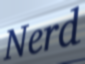
Nerd